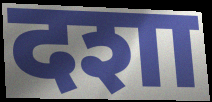
दशा